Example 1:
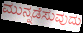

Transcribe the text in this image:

ಮುನ್ನಡೆಸುವುದು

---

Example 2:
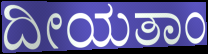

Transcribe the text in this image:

ದೀಯತಾಂ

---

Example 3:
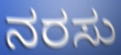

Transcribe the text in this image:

ನರಸು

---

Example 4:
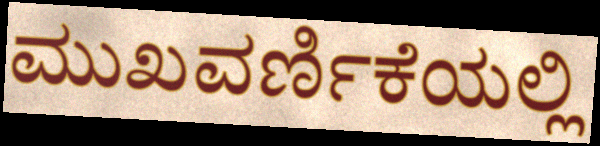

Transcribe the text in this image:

ಮುಖವರ್ಣಿಕೆಯಲ್ಲಿ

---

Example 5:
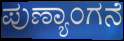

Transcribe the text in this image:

ಪುಣ್ಯಾಂಗನೆ